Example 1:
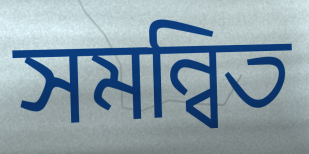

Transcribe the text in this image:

সমন্বিত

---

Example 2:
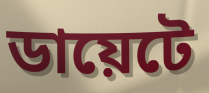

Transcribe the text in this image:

ডায়েটে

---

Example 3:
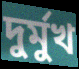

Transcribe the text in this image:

দুর্মুখ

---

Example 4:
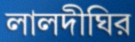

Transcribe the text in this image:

লালদীঘির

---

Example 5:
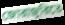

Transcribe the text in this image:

জোরাজুরিতে